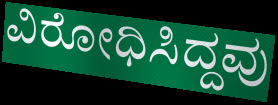
ವಿರೋಧಿಸಿದ್ದವು